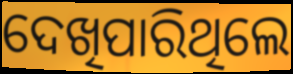
ଦେଖିପାରିଥିଲେ